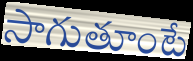
సాగుతూంటే